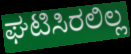
ಘಟಿಸಿರಲಿಲ್ಲ